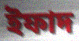
ইফাদ